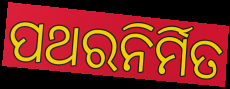
ପଥରନିର୍ମିତ